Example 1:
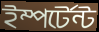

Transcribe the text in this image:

ইম্পর্টেন্ট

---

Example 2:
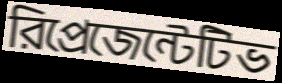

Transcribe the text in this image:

রিপ্রেজেন্টেটিভ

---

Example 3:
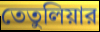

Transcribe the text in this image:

তেতুলিয়ার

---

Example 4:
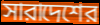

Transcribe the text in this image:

সারাদেশের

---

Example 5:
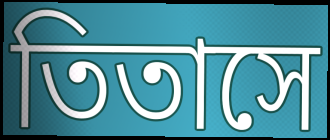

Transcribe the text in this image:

তিতাসে